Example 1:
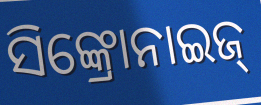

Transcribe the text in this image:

ସିଙ୍କ୍ରୋନାଇଜ୍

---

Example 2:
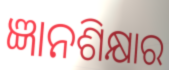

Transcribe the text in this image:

ଜ୍ଞାନଶିକ୍ଷାର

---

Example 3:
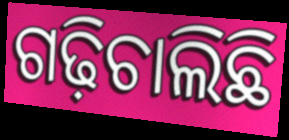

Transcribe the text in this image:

ଗଢ଼ିଚାଲିଛି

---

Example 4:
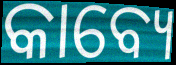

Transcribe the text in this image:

କାବ୍ୟେ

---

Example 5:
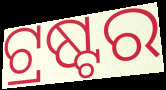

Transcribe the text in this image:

ଟ୍ରଷ୍ଟର